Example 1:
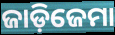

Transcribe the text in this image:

ଜାଡ଼ିଜେମା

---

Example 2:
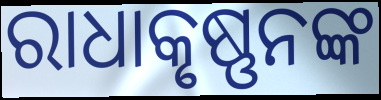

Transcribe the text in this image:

ରାଧାକୃଷ୍ଣନଙ୍କ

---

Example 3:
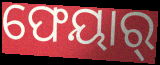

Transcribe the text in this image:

ଫେୟାର୍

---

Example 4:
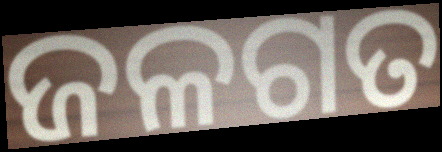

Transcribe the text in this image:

ଜଳଗତ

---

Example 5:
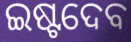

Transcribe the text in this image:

ଇଷ୍ଟଦେବ